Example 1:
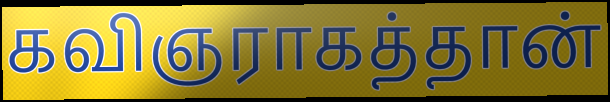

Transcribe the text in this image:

கவிஞராகத்தான்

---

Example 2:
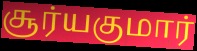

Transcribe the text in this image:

சூர்யகுமார்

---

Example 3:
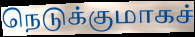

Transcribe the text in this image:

நெடுக்குமாகச்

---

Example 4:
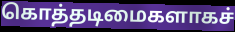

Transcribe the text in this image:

கொத்தடிமைகளாகச்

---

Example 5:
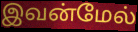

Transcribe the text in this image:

இவன்மேல்